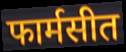
फार्मसीत